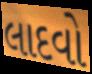
લાદવો